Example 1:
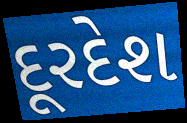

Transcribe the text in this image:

દૂરદેશ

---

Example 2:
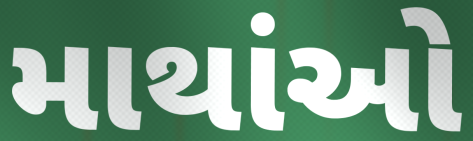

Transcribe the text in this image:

માથાંઓ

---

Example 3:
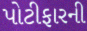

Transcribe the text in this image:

પોટીફારની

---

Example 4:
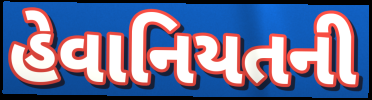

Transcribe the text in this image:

હેવાનિયતની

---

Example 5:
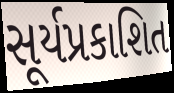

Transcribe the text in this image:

સૂર્યપ્રકાશિત